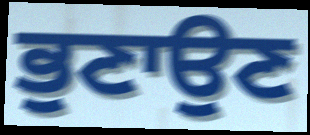
ਭੁਣਾਉਣ